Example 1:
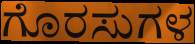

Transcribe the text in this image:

ಗೊರಸುಗಳ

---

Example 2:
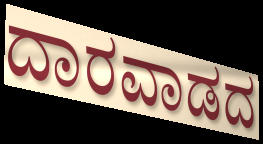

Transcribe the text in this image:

ದಾರವಾಡದ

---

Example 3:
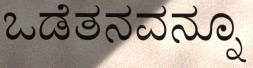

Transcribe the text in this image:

ಒಡೆತನವನ್ನೂ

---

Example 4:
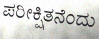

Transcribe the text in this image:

ಪರೀಕ್ಷಿತನೆಂದು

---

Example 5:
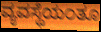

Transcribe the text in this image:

ವ್ಯವಸ್ಥೆಯಂತೂ